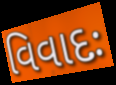
વિવાદઃ